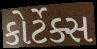
કોર્ટેક્સ